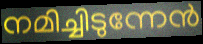
നമിച്ചിടുന്നേൻ